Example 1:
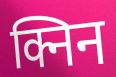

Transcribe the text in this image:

क्निन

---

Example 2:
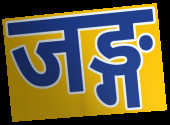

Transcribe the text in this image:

जङ्ग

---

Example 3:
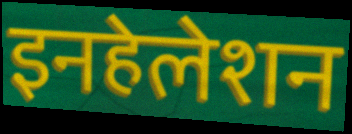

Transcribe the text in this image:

इनहेलेशन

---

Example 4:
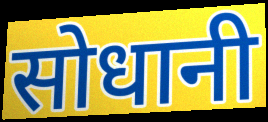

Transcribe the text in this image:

सोधानी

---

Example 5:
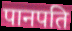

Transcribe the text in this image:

पानपति